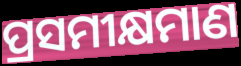
ପ୍ରସମୀକ୍ଷମାଣ